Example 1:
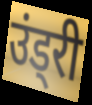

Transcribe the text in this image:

उंड्री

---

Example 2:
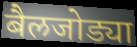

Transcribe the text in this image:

बैलजोड्या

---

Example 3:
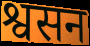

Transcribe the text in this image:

श्वसन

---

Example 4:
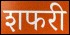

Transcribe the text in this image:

शफरी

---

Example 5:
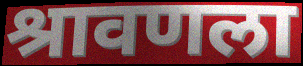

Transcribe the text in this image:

श्रावणला